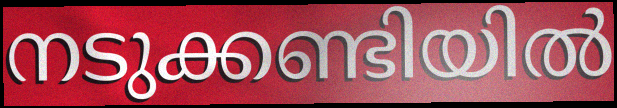
നടുക്കണ്ടിയിൽ